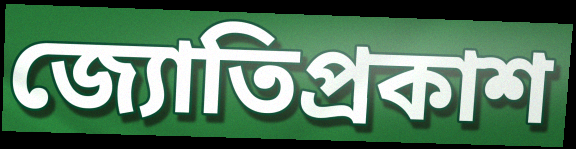
জ্যোতিপ্রকাশ